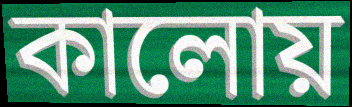
কালোয়